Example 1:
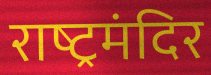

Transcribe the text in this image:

राष्ट्रमंदिर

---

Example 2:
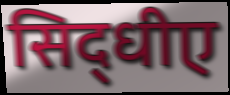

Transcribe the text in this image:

सिद्धीए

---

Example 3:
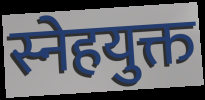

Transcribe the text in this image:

स्नेहयुक्त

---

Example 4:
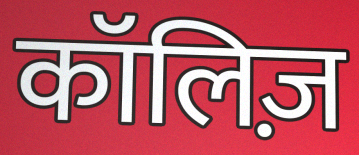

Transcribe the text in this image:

कॉलिज़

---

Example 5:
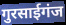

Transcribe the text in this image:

गुरसाईगंज